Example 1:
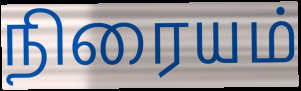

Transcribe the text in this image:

நிரையம்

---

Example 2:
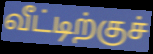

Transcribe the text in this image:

வீட்டிற்குச்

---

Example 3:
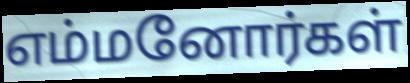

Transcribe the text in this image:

எம்மனோர்கள்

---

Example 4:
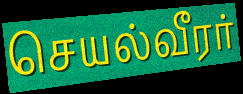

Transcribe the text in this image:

செயல்வீரர்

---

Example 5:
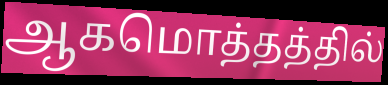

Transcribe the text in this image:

ஆகமொத்தத்தில்